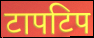
टापटिप